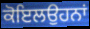
ਕੋਇਲਉਹਨਾਂ